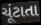
ચૂંટાતા